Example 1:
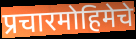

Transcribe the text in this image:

प्रचारमोहिमेचे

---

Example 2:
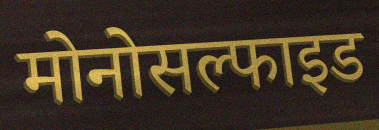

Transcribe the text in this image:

मोनोसल्फाइड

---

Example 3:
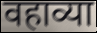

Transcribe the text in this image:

वहाव्या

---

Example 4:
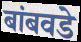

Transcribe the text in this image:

बांबवडे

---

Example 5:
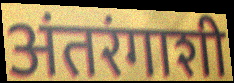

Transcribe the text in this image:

अंतरंगाशी